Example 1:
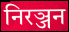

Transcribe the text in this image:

निरञ्जन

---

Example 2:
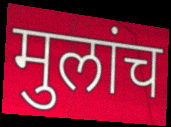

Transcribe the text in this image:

मुलांच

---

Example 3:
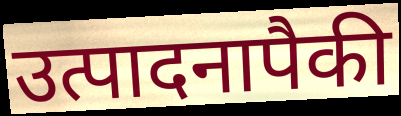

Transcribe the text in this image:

उत्पादनापैकी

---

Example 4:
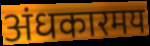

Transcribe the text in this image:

अंधकारमय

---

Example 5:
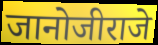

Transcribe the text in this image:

जानोजीराजे